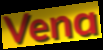
Vena